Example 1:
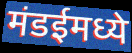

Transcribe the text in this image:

मंडईमध्ये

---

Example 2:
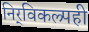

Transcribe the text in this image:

निर्विकल्पही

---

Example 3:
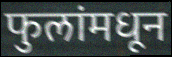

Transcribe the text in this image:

फुलांमधून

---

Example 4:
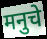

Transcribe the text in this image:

मनुचे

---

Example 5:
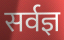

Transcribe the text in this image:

सर्वज्ञ